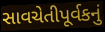
સાવચેતીપૂર્વકનું